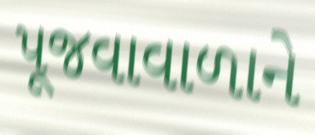
પૂજવાવાળાને